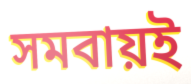
সমবায়ই